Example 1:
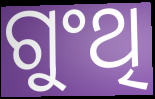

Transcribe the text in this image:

ଗୁଂଥି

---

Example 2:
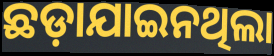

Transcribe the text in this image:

ଛଡ଼ାଯାଇନଥିଲା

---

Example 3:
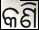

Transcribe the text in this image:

କଣି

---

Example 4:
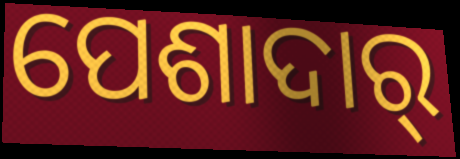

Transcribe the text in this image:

ପେଶାଦାର୍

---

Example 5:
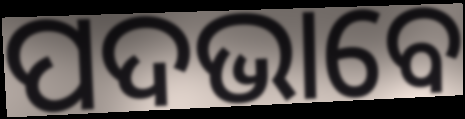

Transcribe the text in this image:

ପଦଭାବେ